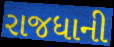
રાજધાની